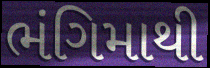
ભંગિમાથી